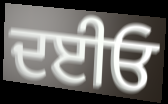
ਦਈਓ